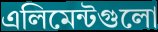
এলিমেন্টগুলো